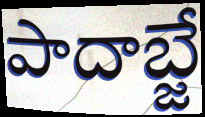
పాదాబ్జే